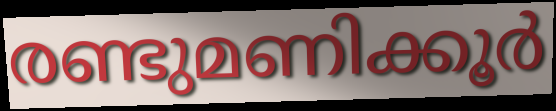
രണ്ടുമണിക്കൂർ